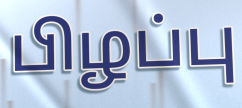
பிழப்பு